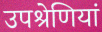
उपश्रेणियां